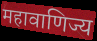
महावाणिज्य